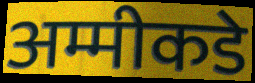
अम्मीकडे